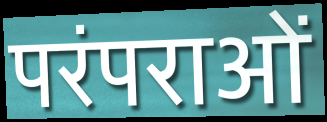
परंपराओं